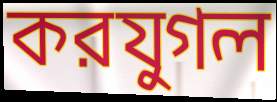
করযুগল